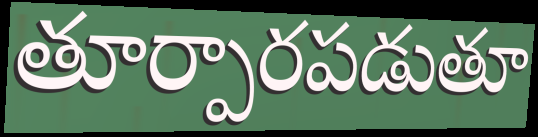
తూర్పారపడుతూ